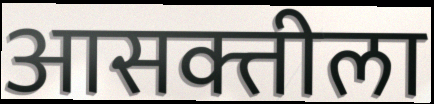
आसक्तीला